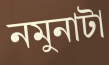
নমুনাটা